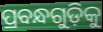
ପ୍ରବନ୍ଧଗୁଡ଼ିକୁ